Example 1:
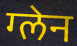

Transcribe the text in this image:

ग्लेन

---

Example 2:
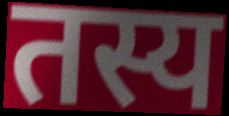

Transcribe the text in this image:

तस्य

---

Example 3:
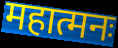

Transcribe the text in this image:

महात्मनः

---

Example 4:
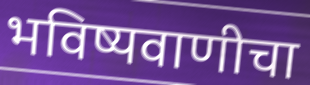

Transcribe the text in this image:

भविष्यवाणीचा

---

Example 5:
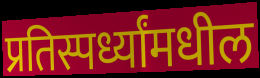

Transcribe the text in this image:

प्रतिस्पर्ध्यांमधील